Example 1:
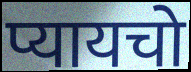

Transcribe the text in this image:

प्यायचो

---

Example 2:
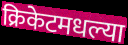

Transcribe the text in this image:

क्रिकेटमधल्या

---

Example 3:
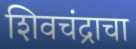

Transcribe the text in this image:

शिवचंद्राचा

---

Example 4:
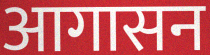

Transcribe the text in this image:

आगासन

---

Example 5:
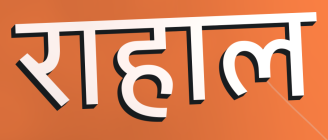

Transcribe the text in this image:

राहाल